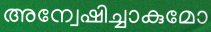
അന്വേഷിച്ചാകുമോ